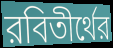
রবিতীর্থের